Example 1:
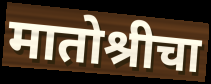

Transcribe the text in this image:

मातोश्रीचा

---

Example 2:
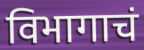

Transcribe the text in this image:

विभागाचं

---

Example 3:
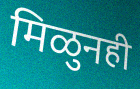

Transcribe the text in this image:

मिळुनही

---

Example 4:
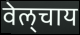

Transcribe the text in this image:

वेल्चाय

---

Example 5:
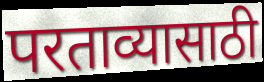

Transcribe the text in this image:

परताव्यासाठी